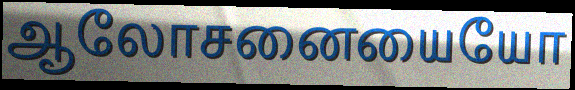
ஆலோசனையையோ